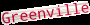
Greenville